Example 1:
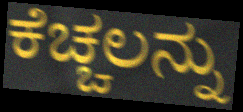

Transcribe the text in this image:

ಕೆಚ್ಚಲನ್ನು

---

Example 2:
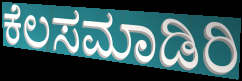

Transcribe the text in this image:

ಕೆಲಸಮಾಡಿರಿ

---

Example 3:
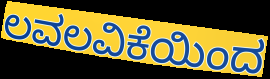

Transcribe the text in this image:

ಲವಲವಿಕೆಯಿಂದ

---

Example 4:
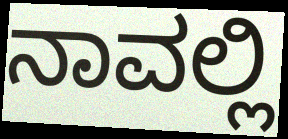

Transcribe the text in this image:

ನಾವಲ್ಲಿ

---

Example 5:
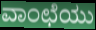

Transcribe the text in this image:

ವಾಂಛೆಯು